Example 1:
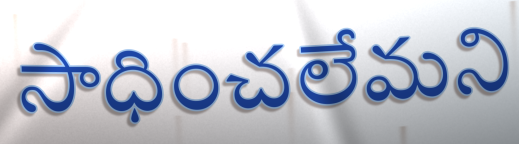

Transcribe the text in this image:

సాధించలేమని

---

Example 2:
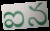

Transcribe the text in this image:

ఐన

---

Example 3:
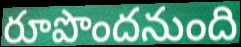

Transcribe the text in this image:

రూపొందనుంది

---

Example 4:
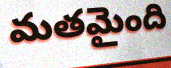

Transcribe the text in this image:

మతమైంది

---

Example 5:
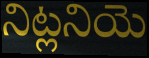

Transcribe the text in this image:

నిట్లనియె